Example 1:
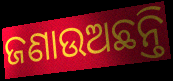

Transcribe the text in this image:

ଜଣାଉଅଛନ୍ତି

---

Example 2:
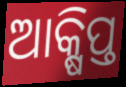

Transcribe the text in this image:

ଆକ୍ଷିପ୍ତ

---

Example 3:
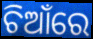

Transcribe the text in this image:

ଚିଆଁରେ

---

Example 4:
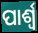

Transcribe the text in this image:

ପାର୍ଶ୍ବ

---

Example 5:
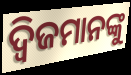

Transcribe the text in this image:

ଦ୍ୱିଜମାନଙ୍କୁ